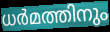
ധർമത്തിനും